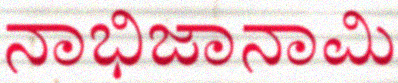
ನಾಭಿಜಾನಾಮಿ